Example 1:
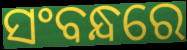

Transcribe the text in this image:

ସଂବନ୍ଧରେ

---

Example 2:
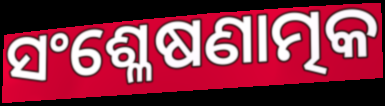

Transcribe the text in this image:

ସଂଶ୍ଳେଷଣାତ୍ମକ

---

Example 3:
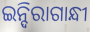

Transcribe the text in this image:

ଇନ୍ଦିରାଗାନ୍ଧୀ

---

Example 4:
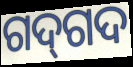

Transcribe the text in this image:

ଗଦ୍‌ଗଦ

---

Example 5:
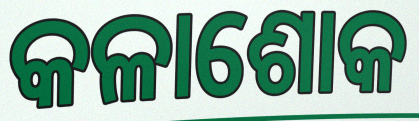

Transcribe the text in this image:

କଳାଶୋକ